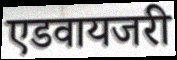
एडवायजरी